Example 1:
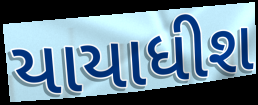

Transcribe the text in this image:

યાયાધીશ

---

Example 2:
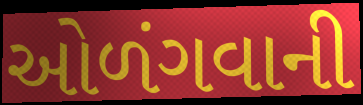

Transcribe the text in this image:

ઓળંગવાની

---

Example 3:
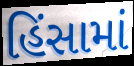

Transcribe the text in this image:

હિંસામાં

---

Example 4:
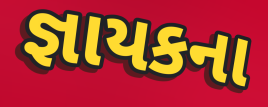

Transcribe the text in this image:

જ્ઞાયકના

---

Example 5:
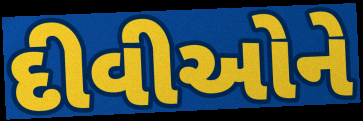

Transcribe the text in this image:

દીવીઓને